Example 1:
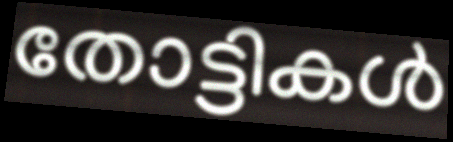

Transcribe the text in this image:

തോട്ടികൾ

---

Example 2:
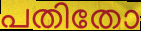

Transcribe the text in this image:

പതിതോ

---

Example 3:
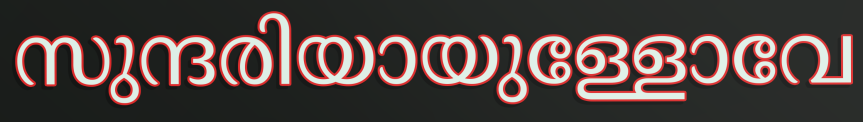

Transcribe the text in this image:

സുന്ദരിയായുള്ളോവേ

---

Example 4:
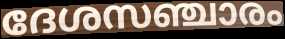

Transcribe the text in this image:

ദേശസഞ്ചാരം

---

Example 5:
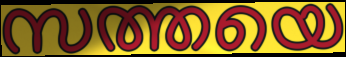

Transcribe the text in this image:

സത്തയെ